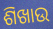
ଶିଖାଉ